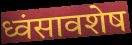
ध्वंसावशेष